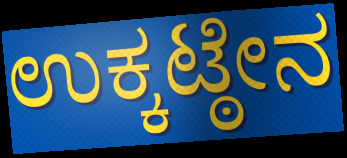
ಉಕ್ಕಟ್ಠೇನ